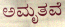
ಅಮೃತವೆ